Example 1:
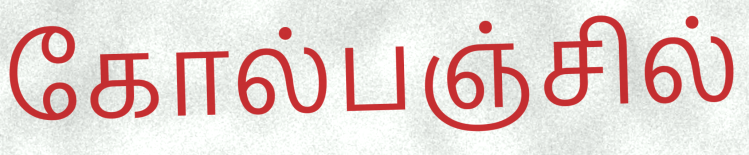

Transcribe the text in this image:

கோல்பஞ்சில்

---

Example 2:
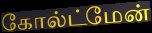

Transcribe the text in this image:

கோல்ட்மேன்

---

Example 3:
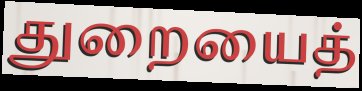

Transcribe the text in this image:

துறையைத்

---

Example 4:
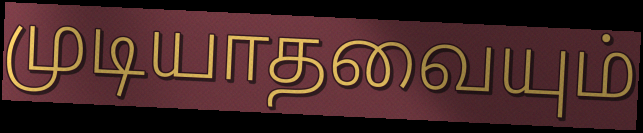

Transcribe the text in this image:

முடியாதவையும்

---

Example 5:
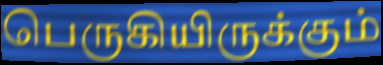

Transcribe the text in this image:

பெருகியிருக்கும்